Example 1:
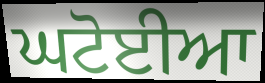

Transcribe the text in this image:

ਘਟੋਈਆ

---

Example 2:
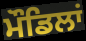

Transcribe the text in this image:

ਮੌਡਿਲਾਂ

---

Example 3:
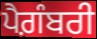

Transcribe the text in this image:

ਪੈਗ਼ੰਬਰੀ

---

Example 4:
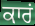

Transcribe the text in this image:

ਕਾਰਂ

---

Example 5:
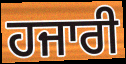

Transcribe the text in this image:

ਹਜਾਰੀ